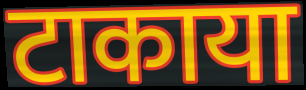
टाकाया